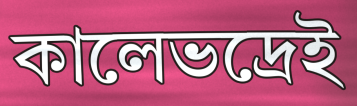
কালেভদ্রেই